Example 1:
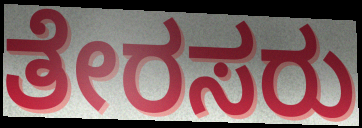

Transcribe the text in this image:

ತೇರಸರು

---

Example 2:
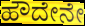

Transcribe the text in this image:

ಹೌದೇನೇ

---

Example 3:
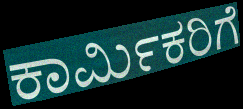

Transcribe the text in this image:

ಕಾರ್ಮಿಕರಿಗೆ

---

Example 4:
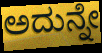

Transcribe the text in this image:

ಅದುನ್ನೇ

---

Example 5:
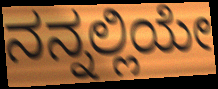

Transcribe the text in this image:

ನನ್ನಲ್ಲಿಯೇ